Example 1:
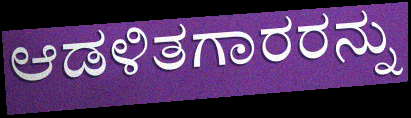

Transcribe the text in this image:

ಆಡಳಿತಗಾರರನ್ನು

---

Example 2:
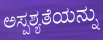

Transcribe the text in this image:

ಅಸ್ಪಶ್ಯತೆಯನ್ನು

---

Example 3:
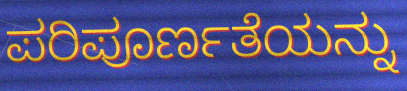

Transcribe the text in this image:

ಪರಿಪೂರ್ಣತೆಯನ್ನು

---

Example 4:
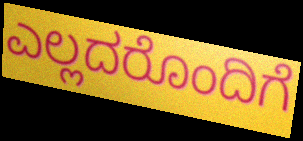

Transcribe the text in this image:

ಎಲ್ಲದರೊಂದಿಗೆ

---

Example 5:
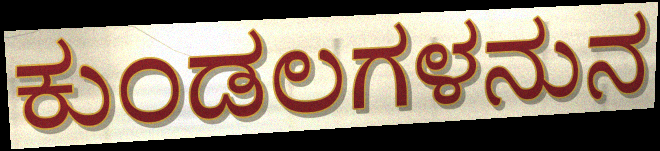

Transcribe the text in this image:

ಕುಂಡಲಗಳನುನ